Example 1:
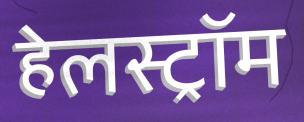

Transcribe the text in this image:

हेलस्ट्रॉम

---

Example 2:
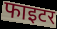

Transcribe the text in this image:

फाइटर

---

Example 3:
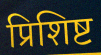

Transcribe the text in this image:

प्रिशिष्ट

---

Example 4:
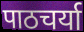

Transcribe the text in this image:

पाठचर्या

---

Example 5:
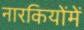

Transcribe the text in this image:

नारकियोंमें